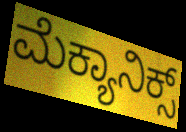
ಮೆಕ್ಯಾನಿಕ್ಸ್